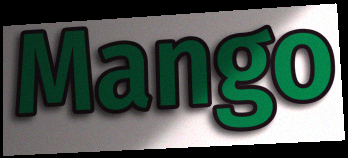
Mango